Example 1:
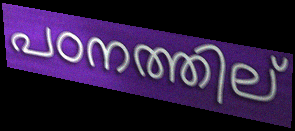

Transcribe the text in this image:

പഠനത്തില്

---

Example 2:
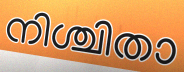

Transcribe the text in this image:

നിശ്ചിതാ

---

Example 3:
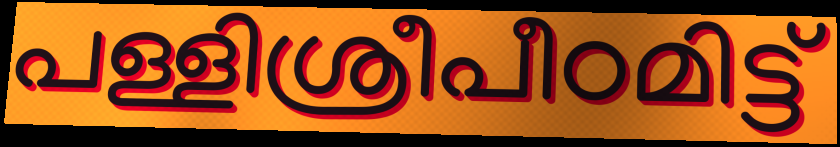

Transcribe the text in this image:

പള്ളിശ്രീപീഠമിട്ട്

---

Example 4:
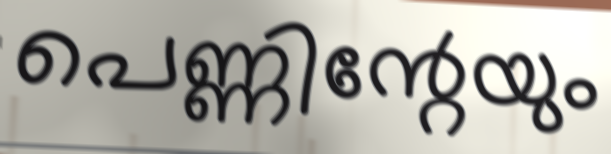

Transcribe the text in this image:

പെണ്ണിന്റേയും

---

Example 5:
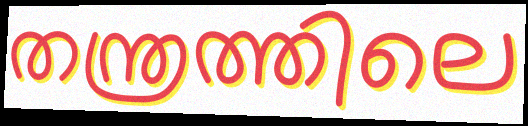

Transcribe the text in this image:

തന്ത്രത്തിലെ